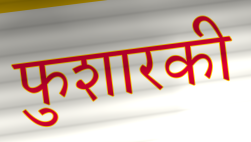
फुशारकी